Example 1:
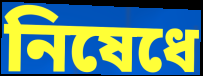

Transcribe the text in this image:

নিষেধে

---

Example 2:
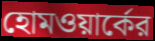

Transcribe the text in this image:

হোমওয়ার্কের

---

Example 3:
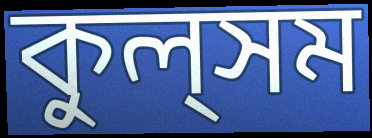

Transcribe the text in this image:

কুল্‌সম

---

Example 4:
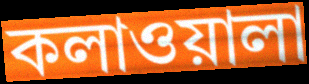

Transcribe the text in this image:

কলাওয়ালা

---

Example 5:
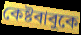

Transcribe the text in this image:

কেষ্টবাবুকে